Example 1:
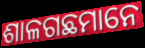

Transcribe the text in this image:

ଶାଳଗଛମାନେ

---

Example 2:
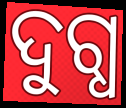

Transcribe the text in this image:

ଦୁଗ୍ଧ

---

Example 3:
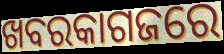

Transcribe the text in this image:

ଖବରକାଗଜରେ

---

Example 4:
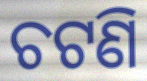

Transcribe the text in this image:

ଚଟଣି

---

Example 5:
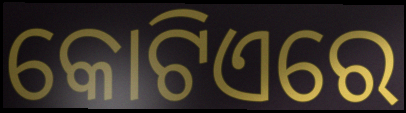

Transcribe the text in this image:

କୋଟିଏରେ